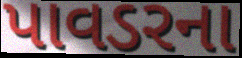
પાવડરના